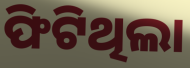
ଫିଟିଥିଲା